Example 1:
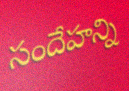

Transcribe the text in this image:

సందేహన్ని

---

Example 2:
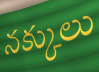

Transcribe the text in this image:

నక్కులు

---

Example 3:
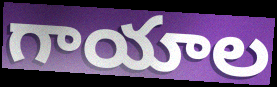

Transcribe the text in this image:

గాయాల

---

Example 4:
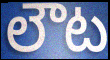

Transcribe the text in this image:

లౌట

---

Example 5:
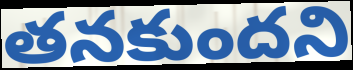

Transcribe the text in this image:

తనకుందని